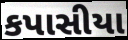
કપાસીયા